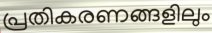
പ്രതികരണങ്ങളിലും